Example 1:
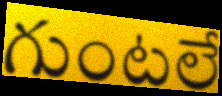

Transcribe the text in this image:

గుంటలే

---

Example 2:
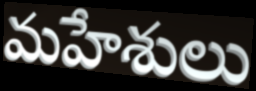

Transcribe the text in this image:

మహేశులు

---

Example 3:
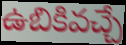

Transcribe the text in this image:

ఉబికివచ్చే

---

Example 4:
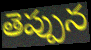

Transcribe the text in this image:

తెప్పున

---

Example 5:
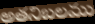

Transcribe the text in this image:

అతనిబలము